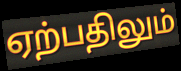
ஏற்பதிலும்